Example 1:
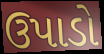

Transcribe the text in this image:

ઉપાડો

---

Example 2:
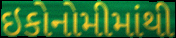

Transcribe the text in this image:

ઇકોનોમીમાંથી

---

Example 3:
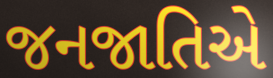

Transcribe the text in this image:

જનજાતિએ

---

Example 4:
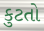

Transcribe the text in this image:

કુટતો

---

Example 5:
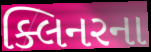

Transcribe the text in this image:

ક્લિનરના